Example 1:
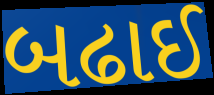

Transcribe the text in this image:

બઢાઈ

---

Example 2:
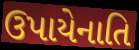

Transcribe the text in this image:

ઉપાયેનાતિ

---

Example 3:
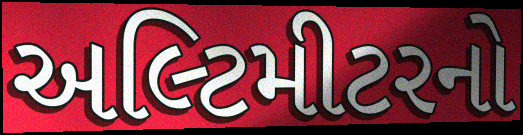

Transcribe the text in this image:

અલ્ટિમીટરનો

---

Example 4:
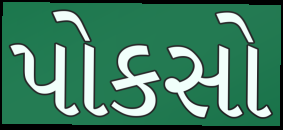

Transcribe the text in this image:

પોકસો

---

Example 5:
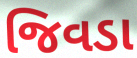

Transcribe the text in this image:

જિવડા